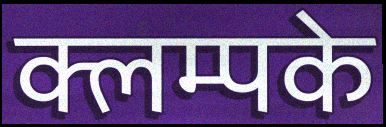
क्लम्पके